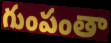
గుంపంతా